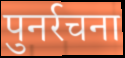
पुनर्रचना